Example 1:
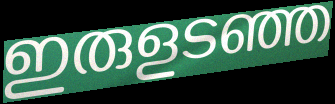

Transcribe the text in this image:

ഇരുളടഞ്ഞ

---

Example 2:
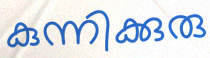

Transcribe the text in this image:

കുന്നിക്കുരു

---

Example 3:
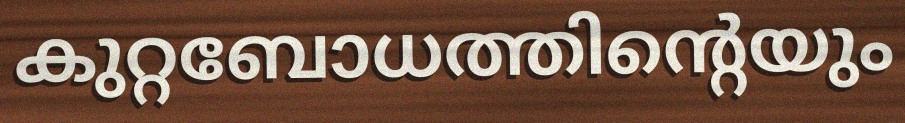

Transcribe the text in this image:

കുറ്റബോധത്തിന്റെയും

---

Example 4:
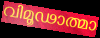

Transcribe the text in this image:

വിമൂഢാത്മാ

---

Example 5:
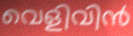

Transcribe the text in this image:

വെളിവിൻ